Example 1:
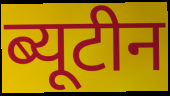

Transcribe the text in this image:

ब्यूटीन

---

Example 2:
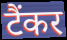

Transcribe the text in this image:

टैंकर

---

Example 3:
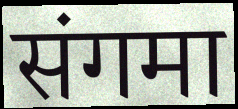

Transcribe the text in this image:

संगमा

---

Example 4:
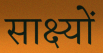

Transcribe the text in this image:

साक्ष्यों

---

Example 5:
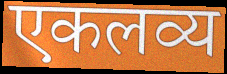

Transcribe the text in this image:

एकलव्य